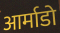
आर्माडो